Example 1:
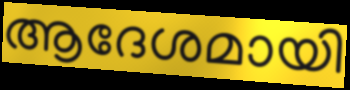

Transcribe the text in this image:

ആദേശമായി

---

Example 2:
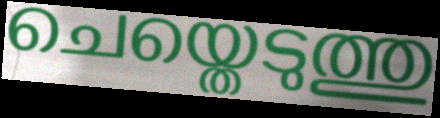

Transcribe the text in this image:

ചെയ്തെടുത്തു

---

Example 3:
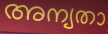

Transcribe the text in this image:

അന്യതാ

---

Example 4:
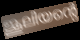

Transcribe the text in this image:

ജൂലിയന്റെ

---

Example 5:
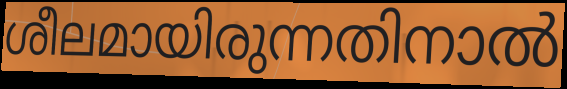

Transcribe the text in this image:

ശീലമായിരുന്നതിനാൽ